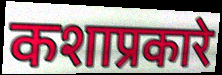
कशाप्रकारे